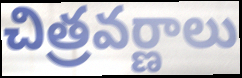
చిత్రవర్ణాలు